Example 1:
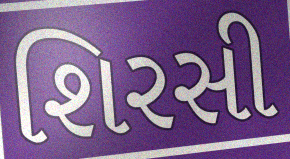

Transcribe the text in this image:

શિરસી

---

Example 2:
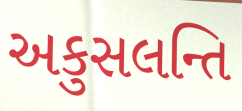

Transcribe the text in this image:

અકુસલન્તિ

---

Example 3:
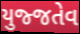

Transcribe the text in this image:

યુજ્જતેવ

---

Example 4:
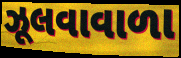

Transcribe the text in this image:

ઝૂલવાવાળા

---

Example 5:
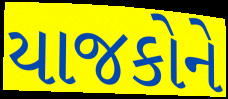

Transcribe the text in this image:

યાજકોને